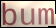
bum